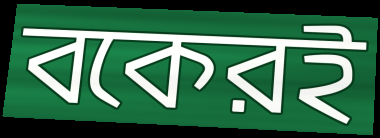
বকেরই